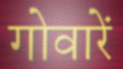
गोवारें